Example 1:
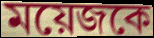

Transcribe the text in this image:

ময়েজকে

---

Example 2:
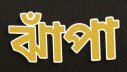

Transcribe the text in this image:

ঝাঁপা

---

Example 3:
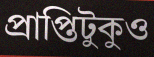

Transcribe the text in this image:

প্রাপ্তিটুকুও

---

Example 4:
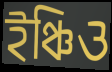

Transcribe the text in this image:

ইঞ্চিও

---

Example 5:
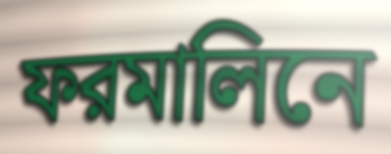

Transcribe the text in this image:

ফরমালিনে